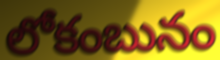
లోకంబునం